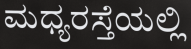
ಮಧ್ಯರಸ್ತೆಯಲ್ಲಿ